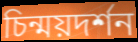
চিন্ময়দর্শন